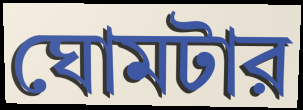
ঘোমটার